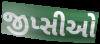
જીપ્સીઓ